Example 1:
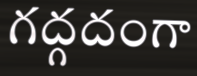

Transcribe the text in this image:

గద్గదంగా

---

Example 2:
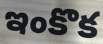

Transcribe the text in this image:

ఇంకొక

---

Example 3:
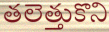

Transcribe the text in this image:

తలెత్తుకొని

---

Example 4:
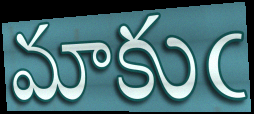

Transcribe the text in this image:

మాకుఁ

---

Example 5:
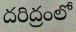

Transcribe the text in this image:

దరిద్రంలో